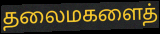
தலைமகளைத்